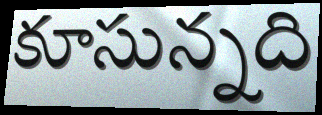
కూసున్నది